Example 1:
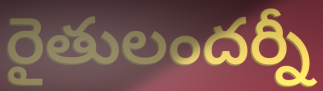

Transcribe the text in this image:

రైతులందర్నీ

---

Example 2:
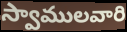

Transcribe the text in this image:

స్వాములవారి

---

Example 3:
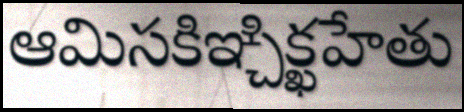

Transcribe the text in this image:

ఆమిసకిఞ్చిక్ఖహేతు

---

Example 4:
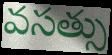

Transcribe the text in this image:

వసత్సు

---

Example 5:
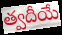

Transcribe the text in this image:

త్వదీయే